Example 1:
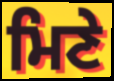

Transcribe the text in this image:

ਮਿਣੇ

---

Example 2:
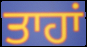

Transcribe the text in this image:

ਤਾਹਾਂ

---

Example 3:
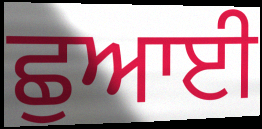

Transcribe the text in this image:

ਛੁਆਈ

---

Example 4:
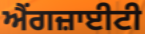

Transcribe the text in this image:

ਐਂਗਜ਼ਾਈਟੀ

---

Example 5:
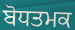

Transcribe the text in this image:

ਬੋਧਤਮਕ